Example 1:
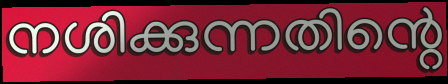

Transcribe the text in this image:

നശിക്കുന്നതിന്റെ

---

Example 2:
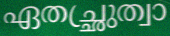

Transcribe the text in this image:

ഏതച്ഛ്രുത്വാ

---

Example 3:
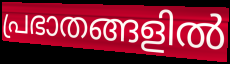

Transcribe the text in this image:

പ്രഭാതങ്ങളിൽ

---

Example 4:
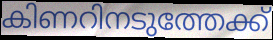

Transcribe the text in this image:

കിണറിനടുത്തേക്ക്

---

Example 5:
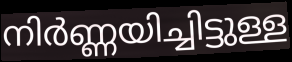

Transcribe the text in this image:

നിർണ്ണയിച്ചിട്ടുള്ള